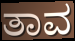
ತಾವ